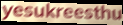
yesukreesthu